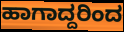
ಹಾಗಾದ್ದರಿಂದ